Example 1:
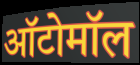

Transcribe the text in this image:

ऑटोमॉल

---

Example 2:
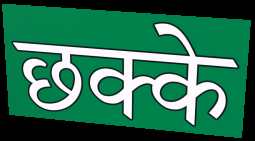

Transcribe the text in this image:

छक्के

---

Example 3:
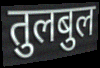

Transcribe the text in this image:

तुलबुल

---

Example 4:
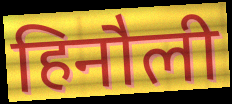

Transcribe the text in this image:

हिनौली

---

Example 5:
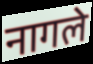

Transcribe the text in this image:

नागले